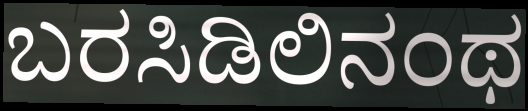
ಬರಸಿಡಿಲಿನಂಥ